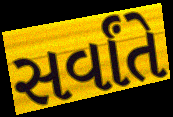
સર્વાંતે